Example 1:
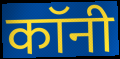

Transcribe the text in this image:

कॉनी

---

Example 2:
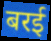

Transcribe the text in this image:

बरई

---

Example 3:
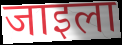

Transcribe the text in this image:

जाइला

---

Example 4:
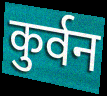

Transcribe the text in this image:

कुर्वन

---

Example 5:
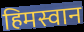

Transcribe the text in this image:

हिमस्वान